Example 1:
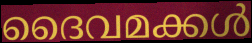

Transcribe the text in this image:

ദൈവമക്കൾ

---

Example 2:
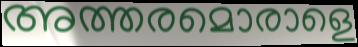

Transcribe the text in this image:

അത്തരമൊരാളെ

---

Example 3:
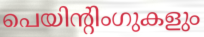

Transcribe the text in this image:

പെയിന്റിംഗുകളും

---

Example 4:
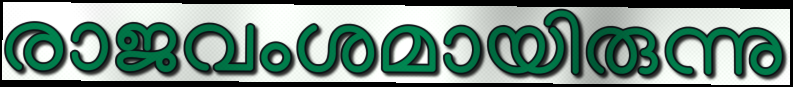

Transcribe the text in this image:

രാജവംശമായിരുന്നു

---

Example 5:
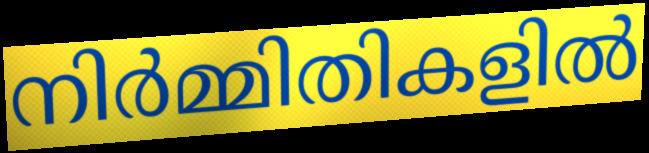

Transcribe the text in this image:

നിർമ്മിതികളിൽ